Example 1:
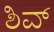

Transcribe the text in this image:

ಶಿವ್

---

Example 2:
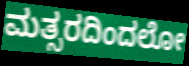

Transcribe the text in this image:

ಮತ್ಸರದಿಂದಲೋ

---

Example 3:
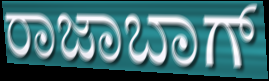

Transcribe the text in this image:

ರಾಜಾಬಾಗ್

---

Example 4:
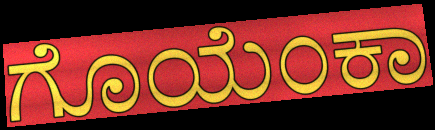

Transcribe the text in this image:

ಗೊಯೆಂಕಾ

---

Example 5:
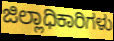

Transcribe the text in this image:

ಜಿಲ್ಲಾಧಿಕಾರಿಗಳು